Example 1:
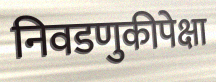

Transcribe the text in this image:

निवडणुकीपेक्षा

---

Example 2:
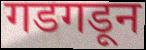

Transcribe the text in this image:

गडगडून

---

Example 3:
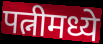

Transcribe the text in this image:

पत्नीमध्ये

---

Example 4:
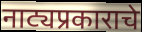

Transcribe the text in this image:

नाट्यप्रकाराचे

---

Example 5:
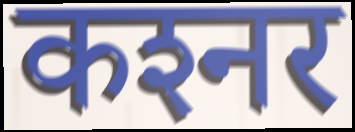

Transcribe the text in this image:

कश्‍नर